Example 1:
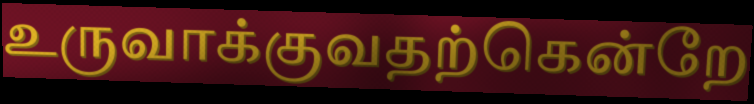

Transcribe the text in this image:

உருவாக்குவதற்கென்றே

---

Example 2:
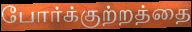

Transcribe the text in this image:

போர்க்குற்றத்தை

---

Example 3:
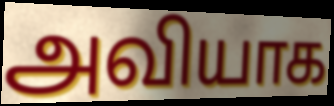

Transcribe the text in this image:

அவியாக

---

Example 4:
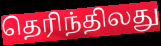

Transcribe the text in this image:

தெரிந்திலது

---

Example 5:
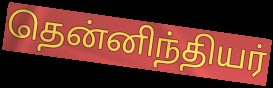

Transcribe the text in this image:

தென்னிந்தியர்